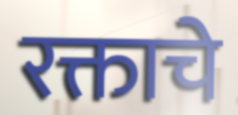
रक्ताचे